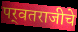
पर्वतराजीचे